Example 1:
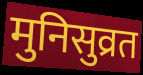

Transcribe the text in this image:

मुनिसुव्रत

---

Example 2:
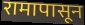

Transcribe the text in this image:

रामापासून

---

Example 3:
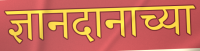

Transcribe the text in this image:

ज्ञानदानाच्या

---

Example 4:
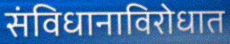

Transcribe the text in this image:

संविधानाविरोधात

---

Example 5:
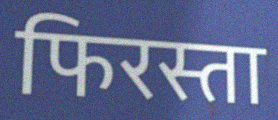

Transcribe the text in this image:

फिरस्ता